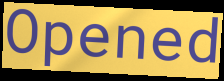
Opened